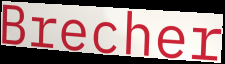
Brecher